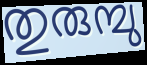
തുരുമ്പു